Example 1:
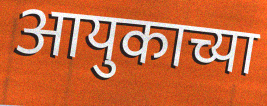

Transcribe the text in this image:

आयुकाच्या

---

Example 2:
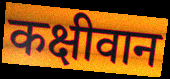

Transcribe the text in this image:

कक्षीवान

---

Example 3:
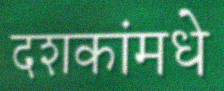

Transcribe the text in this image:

दशकांमधे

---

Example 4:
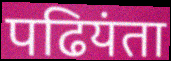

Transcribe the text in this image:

पढियंता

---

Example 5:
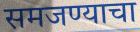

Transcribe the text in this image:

समजण्याचा